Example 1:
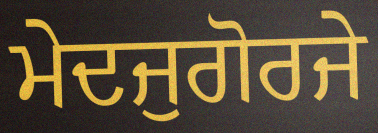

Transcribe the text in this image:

ਮੇਦਜੁਗੋਰਜੇ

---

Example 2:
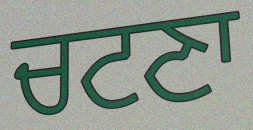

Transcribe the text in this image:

ਚਟਣਾ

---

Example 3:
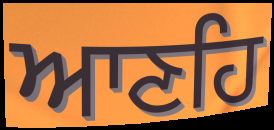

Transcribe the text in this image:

ਆਣਹਿ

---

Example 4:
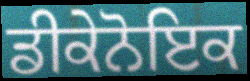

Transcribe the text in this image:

ਡੀਕੇਨੋਇਕ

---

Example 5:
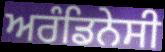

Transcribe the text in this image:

ਅਰੰਡਿਨੇਸੀ